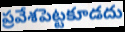
ప్రవేశపెట్టకూడదు